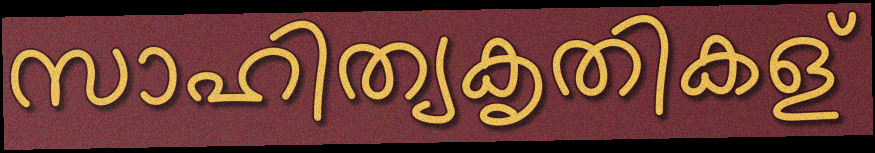
സാഹിത്യകൃതികള്